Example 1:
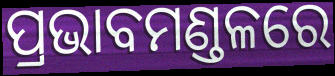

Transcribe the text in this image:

ପ୍ରଭାବମଣ୍ଡଳରେ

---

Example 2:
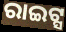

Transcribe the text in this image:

ରାଇଟ୍ସ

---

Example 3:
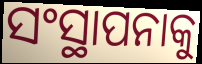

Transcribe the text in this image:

ସଂସ୍ଥାପନାକୁ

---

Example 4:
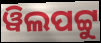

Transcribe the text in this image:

ୱିଲପଟ୍ଟୁ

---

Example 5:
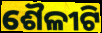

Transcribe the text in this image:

ଶୈଳୀଟି